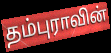
தம்புராவின்